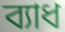
ব্যাধ